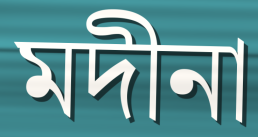
মদীনা